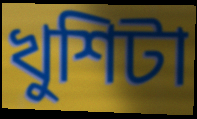
খুশিটা